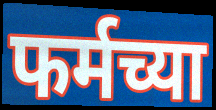
फर्मच्या